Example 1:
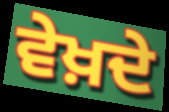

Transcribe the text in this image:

ਵੇਖ਼ਦੇ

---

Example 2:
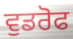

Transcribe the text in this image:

ਵੁਡਰੋਫ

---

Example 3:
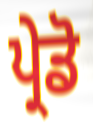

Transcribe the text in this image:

ਪ੍ਰੇਡੋ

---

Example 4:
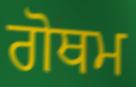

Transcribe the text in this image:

ਗੋਥਮ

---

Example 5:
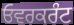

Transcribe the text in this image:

ਓਵਰਕਰੰਟ